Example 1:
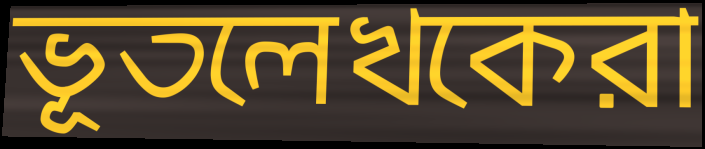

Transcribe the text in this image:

ভূতলেখকেরা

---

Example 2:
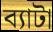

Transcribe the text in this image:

ব্যাটা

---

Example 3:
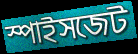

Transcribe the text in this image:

স্পাইসজেট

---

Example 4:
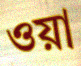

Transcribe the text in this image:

ওয়া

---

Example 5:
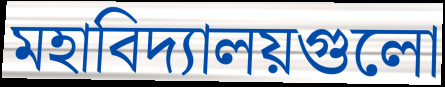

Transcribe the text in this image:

মহাবিদ্যালয়গুলো